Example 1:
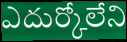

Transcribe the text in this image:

ఎదుర్కోలేని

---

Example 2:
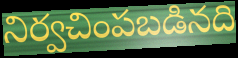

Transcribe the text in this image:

నిర్వచింపబడినది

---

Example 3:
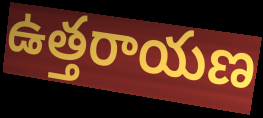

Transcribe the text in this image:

ఉత్తరాయణ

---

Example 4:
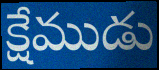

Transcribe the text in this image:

క్షేముడు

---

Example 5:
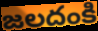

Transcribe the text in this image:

జలదంకి